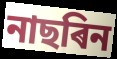
নাছৰিন